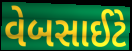
વેબસાઈટે